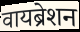
वायब्रेशन